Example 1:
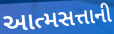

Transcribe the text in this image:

આત્મસત્તાની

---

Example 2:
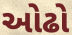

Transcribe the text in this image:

ઓઢો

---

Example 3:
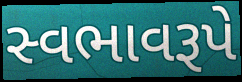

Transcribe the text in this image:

સ્વભાવરૂપે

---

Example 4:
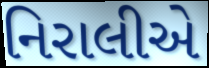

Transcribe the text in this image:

નિરાલીએ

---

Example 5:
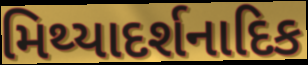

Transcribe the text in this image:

મિથ્યાદર્શનાદિક